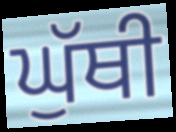
ਘੁੱਥੀ